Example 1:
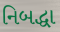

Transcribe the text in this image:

નિબદ્ધા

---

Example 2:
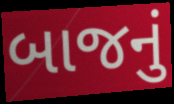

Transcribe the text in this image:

બાજનું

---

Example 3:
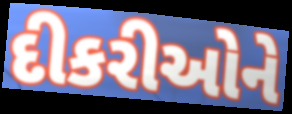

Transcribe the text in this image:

દીકરીઓને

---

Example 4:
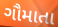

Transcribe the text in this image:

ગૌમાતા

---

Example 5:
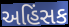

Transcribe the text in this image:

અહિંસક